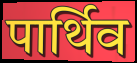
पार्थिव